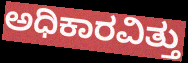
ಅಧಿಕಾರವಿತ್ತು